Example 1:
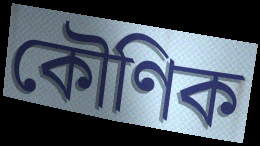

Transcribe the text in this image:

কৌণিক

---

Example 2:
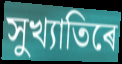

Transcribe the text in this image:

সুখ্যাতিৰে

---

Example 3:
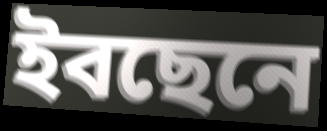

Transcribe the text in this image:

ইবছেনে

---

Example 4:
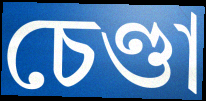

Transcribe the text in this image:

চেণ্ডা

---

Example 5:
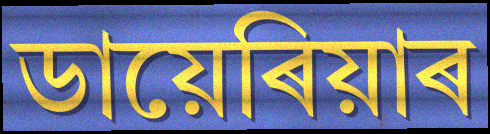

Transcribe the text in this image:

ডায়েৰিয়াৰ